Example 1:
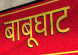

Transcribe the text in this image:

बाबूघाट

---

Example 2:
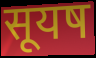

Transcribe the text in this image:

सूयष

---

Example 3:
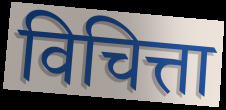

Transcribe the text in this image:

विचित्ता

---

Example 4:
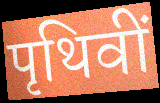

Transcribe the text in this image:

पृथिवीं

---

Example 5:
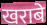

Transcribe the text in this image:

खराबे